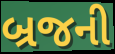
બ્રજની